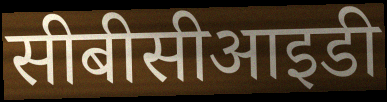
सीबीसीआइडी